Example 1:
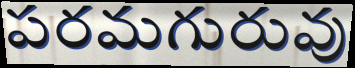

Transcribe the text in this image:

పరమగురువు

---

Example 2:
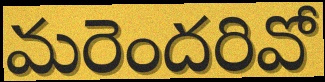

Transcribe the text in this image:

మరెందరివో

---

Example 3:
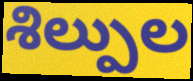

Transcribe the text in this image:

శిల్పుల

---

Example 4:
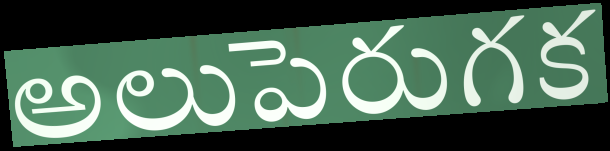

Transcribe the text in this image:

అలుపెరుగక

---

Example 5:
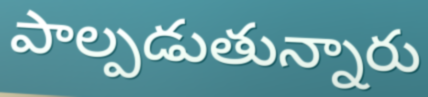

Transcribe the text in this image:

పాల్పడుతున్నారు